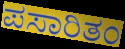
ಪಸಾರಿತಂ